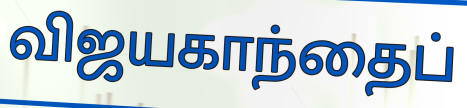
விஜயகாந்தைப்